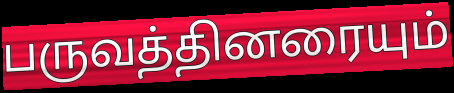
பருவத்தினரையும்